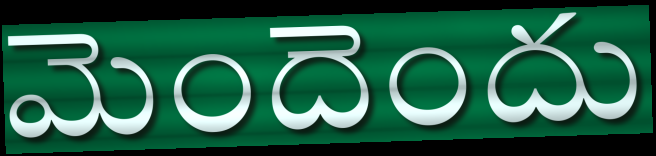
మెందెందు